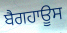
ਬੈਗਹਾਊਸ